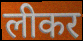
लीकर